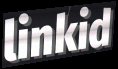
linkid